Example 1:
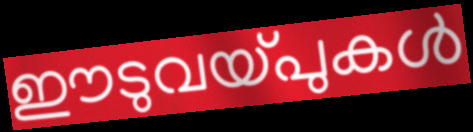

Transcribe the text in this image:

ഈടുവയ്പുകൾ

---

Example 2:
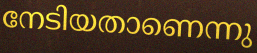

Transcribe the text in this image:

നേടിയതാണെന്നു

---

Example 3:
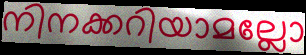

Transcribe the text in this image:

നിനക്കറിയാമല്ലോ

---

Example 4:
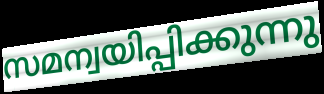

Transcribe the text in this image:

സമന്വയിപ്പിക്കുന്നു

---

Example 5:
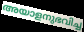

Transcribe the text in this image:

അയാളനുഭവിച്ച